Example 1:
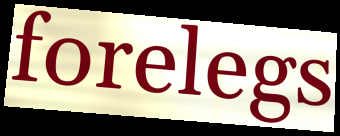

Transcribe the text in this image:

forelegs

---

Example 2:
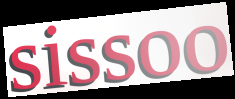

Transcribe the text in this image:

sissoo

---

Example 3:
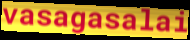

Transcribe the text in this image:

vasagasalai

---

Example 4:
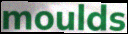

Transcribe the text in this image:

moulds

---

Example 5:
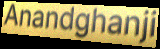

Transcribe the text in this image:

Anandghanji